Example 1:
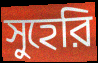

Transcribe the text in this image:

সুহেরি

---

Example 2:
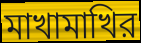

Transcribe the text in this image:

মাখামাখির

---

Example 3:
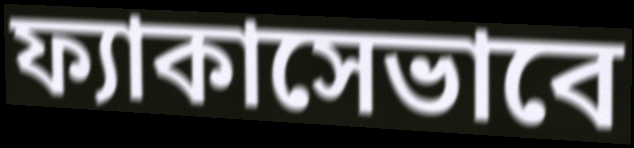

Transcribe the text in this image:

ফ্যাকাসেভাবে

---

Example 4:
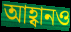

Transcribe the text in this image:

আহ্বানও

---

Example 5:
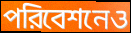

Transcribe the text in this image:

পরিবেশনেও